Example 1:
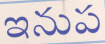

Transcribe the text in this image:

ఇనుప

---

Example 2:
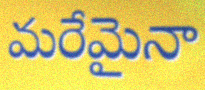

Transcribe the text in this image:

మరేమైనా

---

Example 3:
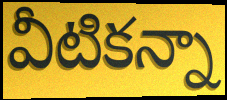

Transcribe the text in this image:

వీటికన్నా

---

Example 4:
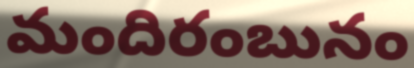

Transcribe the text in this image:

మందిరంబునం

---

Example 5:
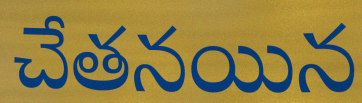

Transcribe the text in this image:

చేతనయిన